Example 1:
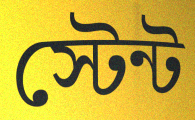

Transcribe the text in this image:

স্টেন্ট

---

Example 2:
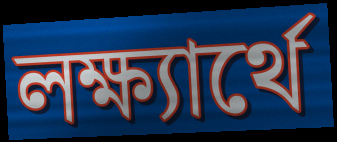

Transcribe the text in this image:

লক্ষ্যার্থে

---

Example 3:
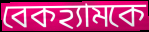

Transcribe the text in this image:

বেকহ্যামকে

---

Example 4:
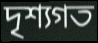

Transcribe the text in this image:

দৃশ্যগত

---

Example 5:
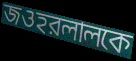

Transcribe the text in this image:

জওহরলালকে